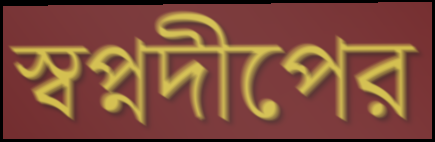
স্বপ্নদীপের